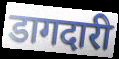
डागदारी